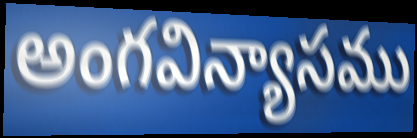
అంగవిన్యాసము